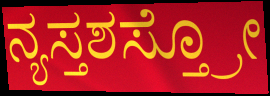
ನ್ಯಸ್ತಶಸ್ತ್ರೋ